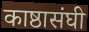
काष्ठासंघी